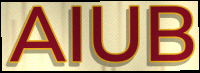
AIUB